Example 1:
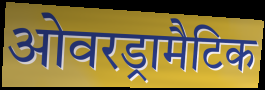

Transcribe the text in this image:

ओवरड्रामैटिक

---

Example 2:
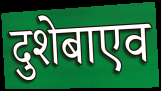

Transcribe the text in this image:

दुशेबाएव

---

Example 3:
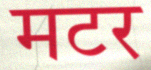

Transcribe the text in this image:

मटर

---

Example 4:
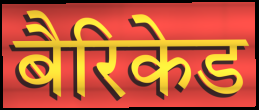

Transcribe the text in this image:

बैरिकेड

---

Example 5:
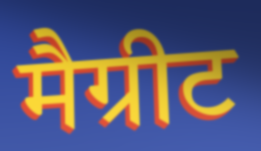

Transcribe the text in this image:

मैग्रीट